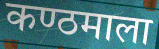
कण्ठमाला